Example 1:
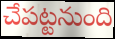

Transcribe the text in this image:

చేపట్టనుంది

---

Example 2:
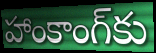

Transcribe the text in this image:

హాంకాంగ్‌కు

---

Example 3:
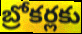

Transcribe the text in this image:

బ్రోకర్లకు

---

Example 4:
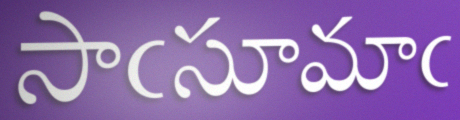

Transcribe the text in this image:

సాఁసూమాఁ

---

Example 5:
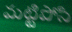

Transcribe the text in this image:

మట్టిపోసి